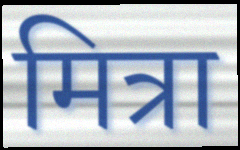
मित्रा